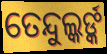
ତେନ୍ଦୁଲ୍କର୍ଙ୍କ